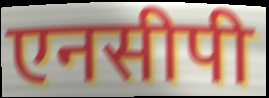
एनसीपी